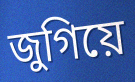
জুগিয়ে